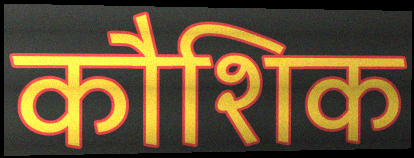
कौशिक